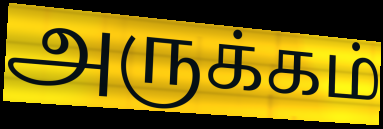
அருக்கம்